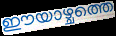
ഈയാഴ്ചത്തെ